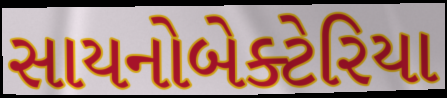
સાયનોબેક્ટેરિયા